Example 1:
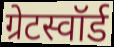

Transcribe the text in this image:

ग्रेटस्वॉर्ड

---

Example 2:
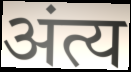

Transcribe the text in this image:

अंत्य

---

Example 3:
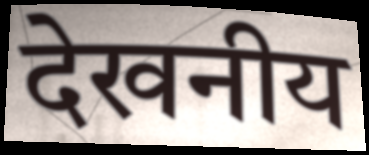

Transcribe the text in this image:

देखनीय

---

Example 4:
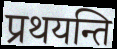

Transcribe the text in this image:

प्रथयन्ति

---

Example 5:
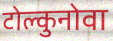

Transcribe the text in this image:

टोल्कुनोवा